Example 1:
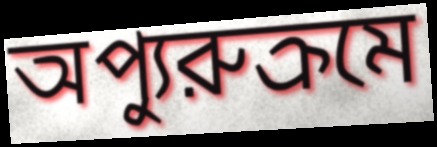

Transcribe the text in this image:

অপ্যুরুক্রমে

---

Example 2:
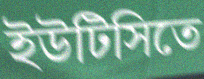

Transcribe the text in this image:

ইউটিসিতে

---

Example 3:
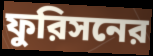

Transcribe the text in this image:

ফুরিসনের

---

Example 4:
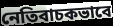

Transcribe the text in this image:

নেতিবাচকভাবে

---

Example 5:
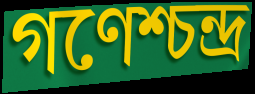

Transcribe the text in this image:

গণেশ্চন্দ্র